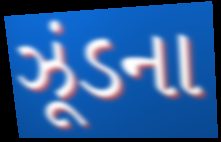
ઝૂંડના